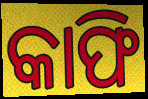
କାଫି